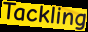
Tackling